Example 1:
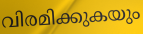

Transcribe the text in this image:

വിരമിക്കുകയും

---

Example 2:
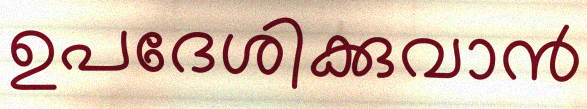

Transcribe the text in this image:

ഉപദേശിക്കുവാൻ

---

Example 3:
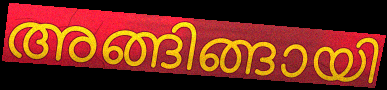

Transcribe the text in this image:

അങ്ങിങ്ങായി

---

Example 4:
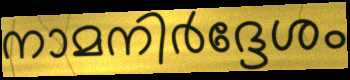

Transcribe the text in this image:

നാമനിർദ്ദേശം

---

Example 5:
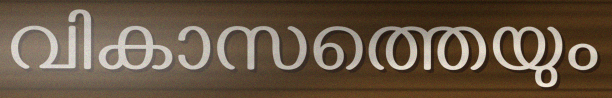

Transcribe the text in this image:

വികാസത്തെയും